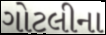
ગોટલીના